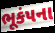
ભૂકંપના